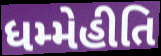
ધમ્મેહીતિ